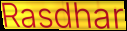
Rasdhar